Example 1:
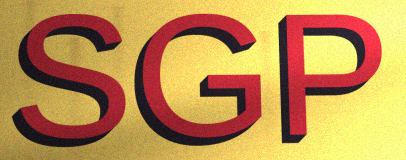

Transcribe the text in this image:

SGP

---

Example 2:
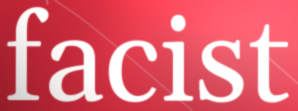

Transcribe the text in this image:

facist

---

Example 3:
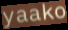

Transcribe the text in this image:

yaako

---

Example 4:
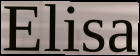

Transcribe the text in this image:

Elisa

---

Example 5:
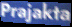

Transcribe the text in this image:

Prajakta